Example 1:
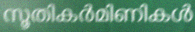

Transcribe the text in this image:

സൂതികർമിണികൾ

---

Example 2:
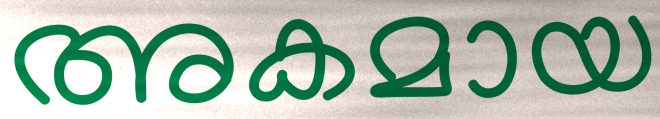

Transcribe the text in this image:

അകമായ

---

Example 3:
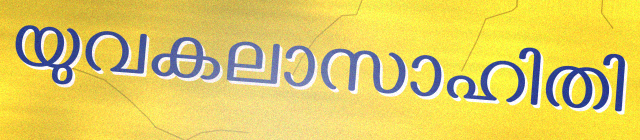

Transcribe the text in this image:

യുവകലാസാഹിതി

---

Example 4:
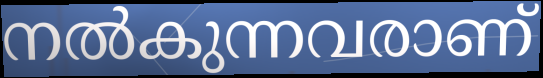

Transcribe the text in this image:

നൽകുന്നവരാണ്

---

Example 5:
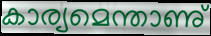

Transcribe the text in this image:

കാര്യമെന്താണു്